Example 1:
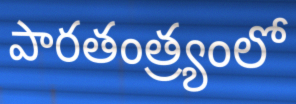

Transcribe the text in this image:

పారతంత్ర్యంలో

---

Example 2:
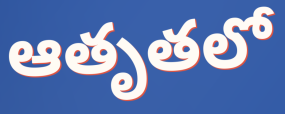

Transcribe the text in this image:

ఆతృతలో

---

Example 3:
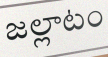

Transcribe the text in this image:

జల్లాటం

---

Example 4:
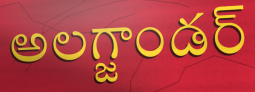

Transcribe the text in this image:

అలగ్జాండర్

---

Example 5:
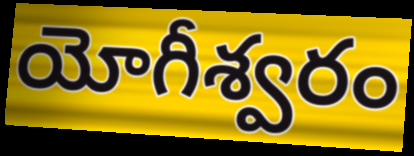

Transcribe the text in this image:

యోగీశ్వరం